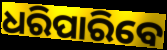
ଧରିପାରିବେ